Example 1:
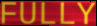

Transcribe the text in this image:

FULLY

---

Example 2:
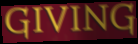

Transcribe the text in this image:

GIVING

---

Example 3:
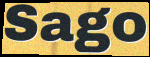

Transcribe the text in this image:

Sago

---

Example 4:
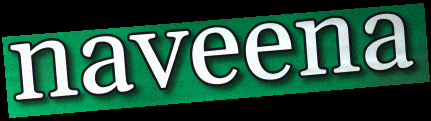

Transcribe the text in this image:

naveena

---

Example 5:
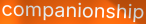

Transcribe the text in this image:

companionship